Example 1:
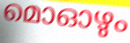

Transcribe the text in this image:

മൊഓഴും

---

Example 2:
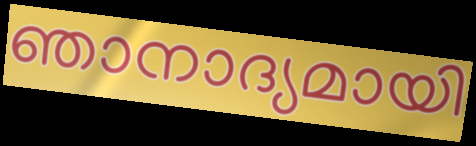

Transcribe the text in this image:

ഞാനാദ്യമായി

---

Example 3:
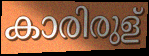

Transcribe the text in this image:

കാരിരുള്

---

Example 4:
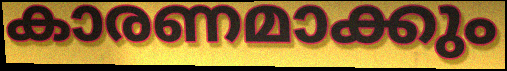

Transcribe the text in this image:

കാരണമാക്കും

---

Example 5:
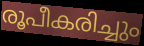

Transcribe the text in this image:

രൂപീകരിച്ചും